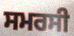
ਸਮਰਸੀ